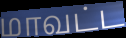
மாவட்ட